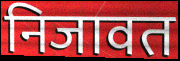
निजावत